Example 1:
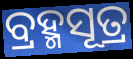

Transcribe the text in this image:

ବ୍ରହ୍ମସୂତ୍ର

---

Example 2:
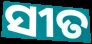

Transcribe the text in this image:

ସୀତ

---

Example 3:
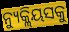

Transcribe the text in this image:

ନ୍ୟୁକ୍ଲିୟସକୁ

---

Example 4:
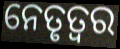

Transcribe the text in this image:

ନେତୃତ୍ୱର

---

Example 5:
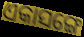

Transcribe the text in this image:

ଏକାସଙ୍ଗେ